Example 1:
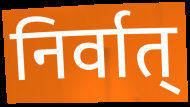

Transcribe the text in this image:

निर्वात्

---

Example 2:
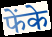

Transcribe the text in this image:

फेंके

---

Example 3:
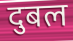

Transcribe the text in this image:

दुबल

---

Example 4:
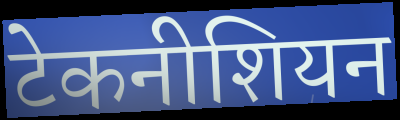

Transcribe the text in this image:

टेकनीशियन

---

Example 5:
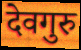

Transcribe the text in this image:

देवगुरु